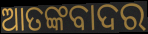
ଆତଙ୍କବାଦର